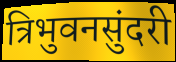
त्रिभुवनसुंदरी